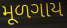
મૂળગાય